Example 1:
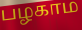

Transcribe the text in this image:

பழகாம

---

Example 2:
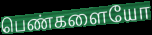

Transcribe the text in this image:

பெண்களையோ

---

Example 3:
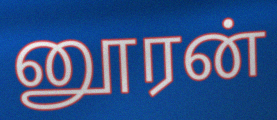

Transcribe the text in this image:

னூரன்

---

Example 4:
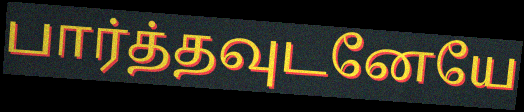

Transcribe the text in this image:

பார்த்தவுடனேயே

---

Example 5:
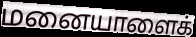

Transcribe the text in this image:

மனையாளைக்